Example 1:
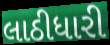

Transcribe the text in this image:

લાઠીધારી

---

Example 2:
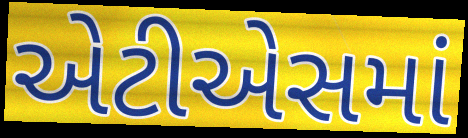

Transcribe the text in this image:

એટીએસમાં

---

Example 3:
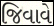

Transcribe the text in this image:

જિવાવે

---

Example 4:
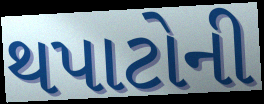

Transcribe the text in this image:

થપાટોની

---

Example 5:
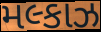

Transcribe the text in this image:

મલ્કાઝ